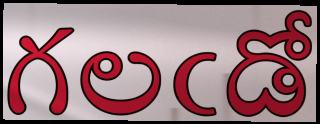
గలఁడో